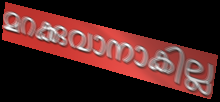
മറക്കുവാനാകില്ല